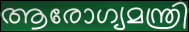
ആരോഗ്യമന്ത്രി